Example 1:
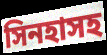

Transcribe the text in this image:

সিনহাসহ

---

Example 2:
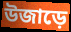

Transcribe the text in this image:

উজাড়ে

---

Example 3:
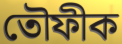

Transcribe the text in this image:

তৌফীক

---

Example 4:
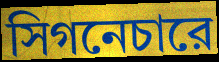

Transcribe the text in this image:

সিগনেচারে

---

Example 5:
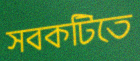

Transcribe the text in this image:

সবকটিতে